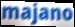
majano